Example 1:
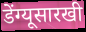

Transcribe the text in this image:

डेंग्यूसारखी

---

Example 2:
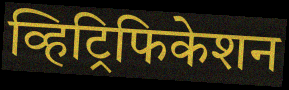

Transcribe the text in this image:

व्हिट्रिफिकेशन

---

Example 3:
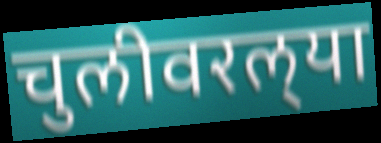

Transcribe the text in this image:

चुलीवरल्या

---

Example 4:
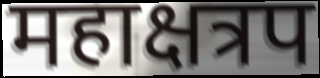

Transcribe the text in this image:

महाक्षत्रप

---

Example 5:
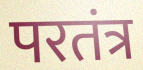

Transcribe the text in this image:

परतंत्र